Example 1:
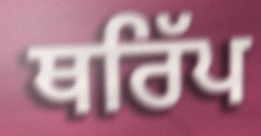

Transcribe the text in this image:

ਥਰਿੱਪ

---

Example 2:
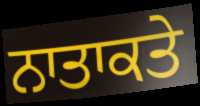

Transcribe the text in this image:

ਨਾਤਾਕਤੇ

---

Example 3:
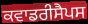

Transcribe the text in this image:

ਕਵਾਡਰੀਸੈਪਸ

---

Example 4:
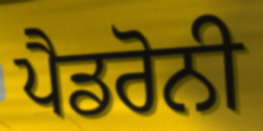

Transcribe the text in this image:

ਪੈਡਰੋਨੀ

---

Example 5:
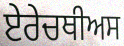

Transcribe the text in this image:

ਏਰੇਚਥੀਅਸ